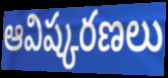
ఆవిష్కరణలు